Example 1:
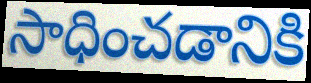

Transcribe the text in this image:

సాధించడానికి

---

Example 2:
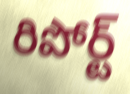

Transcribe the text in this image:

రిపోర్ట్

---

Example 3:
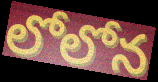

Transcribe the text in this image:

లోలోన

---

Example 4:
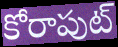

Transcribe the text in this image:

కోరాపుట్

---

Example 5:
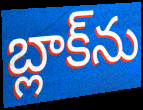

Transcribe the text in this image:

బ్లాక్‌ను